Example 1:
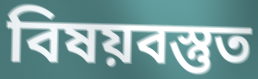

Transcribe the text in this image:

বিষয়বস্তুত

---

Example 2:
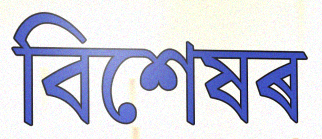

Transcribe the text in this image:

বিশেষৰ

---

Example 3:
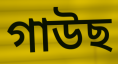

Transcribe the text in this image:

গাউছ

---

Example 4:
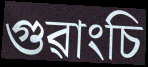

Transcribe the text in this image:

গুৱাংচি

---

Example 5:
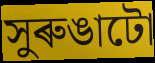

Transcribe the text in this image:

সুৰুঙাটো